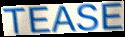
TEASE